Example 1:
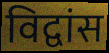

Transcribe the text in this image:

विद्वांस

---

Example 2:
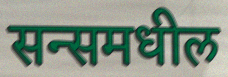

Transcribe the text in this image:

सन्समधील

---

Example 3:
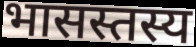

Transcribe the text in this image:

भासस्तस्य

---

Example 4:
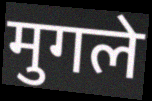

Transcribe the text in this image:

मुगले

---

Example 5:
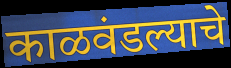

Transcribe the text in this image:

काळवंडल्याचे